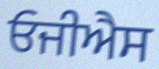
ਓਜੀਐਸ